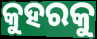
କୁହରକୁ